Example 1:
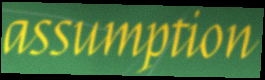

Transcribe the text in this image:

assumption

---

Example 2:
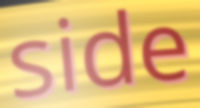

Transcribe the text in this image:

side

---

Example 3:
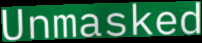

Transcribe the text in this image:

Unmasked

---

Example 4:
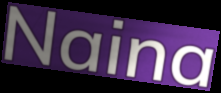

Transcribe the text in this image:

Naina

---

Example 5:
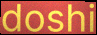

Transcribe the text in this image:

doshi